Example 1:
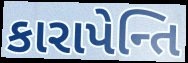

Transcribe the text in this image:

કારાપેન્તિ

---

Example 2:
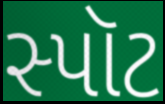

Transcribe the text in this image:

સ્પૉટ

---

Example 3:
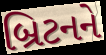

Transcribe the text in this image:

બ્રિટનને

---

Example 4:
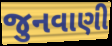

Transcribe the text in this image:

જુનવાણી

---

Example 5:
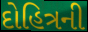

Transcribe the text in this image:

દોહિત્રની